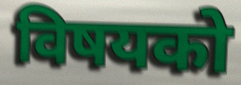
विषयको